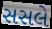
સસલે